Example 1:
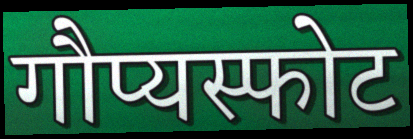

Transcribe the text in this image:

गौप्यस्फोट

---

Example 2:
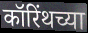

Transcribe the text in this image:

कॉरिंथच्या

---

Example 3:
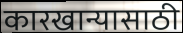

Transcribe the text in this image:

कारखान्यासाठी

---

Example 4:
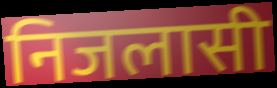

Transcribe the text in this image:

निजलासी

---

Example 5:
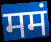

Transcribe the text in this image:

ममं